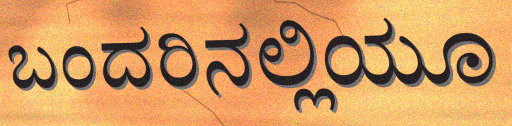
ಬಂದರಿನಲ್ಲಿಯೂ